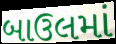
બાઉલમાં